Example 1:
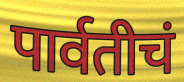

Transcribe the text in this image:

पार्वतीचं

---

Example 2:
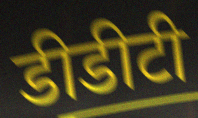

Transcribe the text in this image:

डीडीटी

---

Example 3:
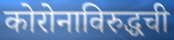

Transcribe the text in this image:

कोरोनाविरुद्धची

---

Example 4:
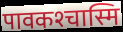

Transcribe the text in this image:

पावकश्चास्मि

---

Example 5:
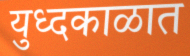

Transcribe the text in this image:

युध्दकाळात